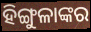
ହିଙ୍ଗୁଳାଙ୍କର